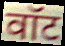
वॉट